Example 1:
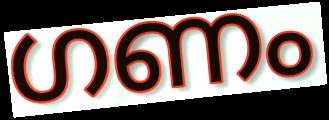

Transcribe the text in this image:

ഗണം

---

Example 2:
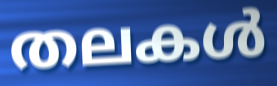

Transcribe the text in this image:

തലകൾ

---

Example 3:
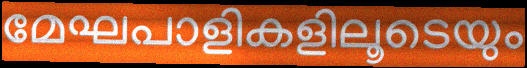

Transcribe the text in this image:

മേഘപാളികളിലൂടെയും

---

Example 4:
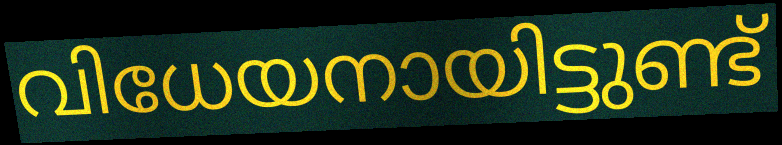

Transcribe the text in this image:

വിധേയനായിട്ടുണ്ട്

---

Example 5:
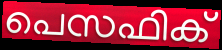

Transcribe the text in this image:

പെസഫിക്